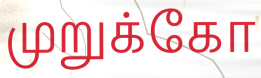
முறுக்கோ